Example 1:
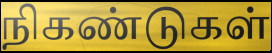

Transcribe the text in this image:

நிகண்டுகள்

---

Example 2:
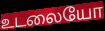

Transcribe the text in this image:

உடலையோ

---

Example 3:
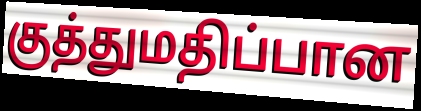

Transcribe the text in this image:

குத்துமதிப்பான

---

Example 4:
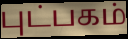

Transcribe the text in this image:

புட்பகம்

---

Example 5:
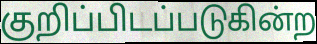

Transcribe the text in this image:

குறிப்பிடப்படுகின்ற